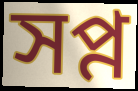
সপ্ন